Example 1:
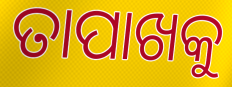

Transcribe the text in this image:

ତାପାଖକୁ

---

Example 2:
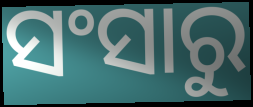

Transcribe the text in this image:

ସଂସାରୁ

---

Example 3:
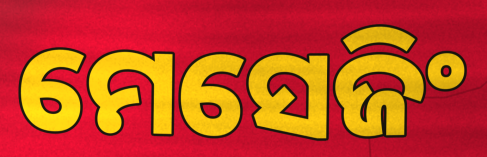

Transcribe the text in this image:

ମେସେଜିଂ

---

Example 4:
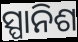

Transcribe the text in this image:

ସ୍ପାନିଶ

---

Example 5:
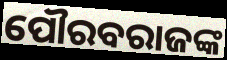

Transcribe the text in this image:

ପୌରବରାଜଙ୍କ